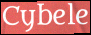
Cybele